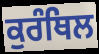
ਕੁਰੰਥਿਲ